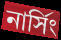
নার্সিং